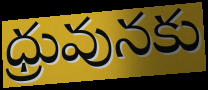
ధ్రువునకు